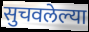
सुचवलेल्या